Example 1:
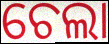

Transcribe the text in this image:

ଚେଲା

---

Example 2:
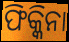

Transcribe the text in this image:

ଫିକ୍କିନା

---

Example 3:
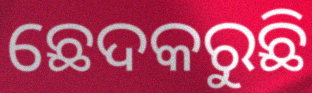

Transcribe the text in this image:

ଛେଦକରୁଛି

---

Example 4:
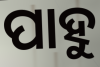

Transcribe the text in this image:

ପାହୁ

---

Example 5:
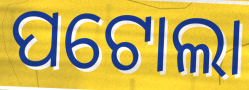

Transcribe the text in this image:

ପଟୋଲା